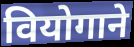
वियोगाने